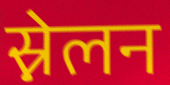
स्नेलन